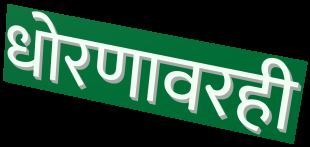
धोरणावरही